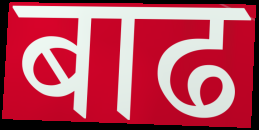
बाढ